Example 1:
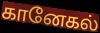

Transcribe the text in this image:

கானேகல்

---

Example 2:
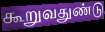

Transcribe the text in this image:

கூறுவதுண்டு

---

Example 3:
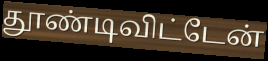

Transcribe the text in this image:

தூண்டிவிட்டேன்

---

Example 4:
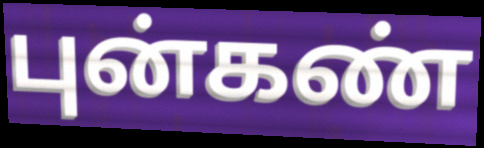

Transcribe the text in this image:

புன்கண்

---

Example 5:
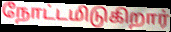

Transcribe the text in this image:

நோட்டமிடுகிறார்